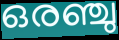
ഒരഞ്ചു